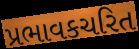
પ્રભાવકચરિત